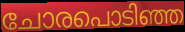
ചോരപൊടിഞ്ഞ